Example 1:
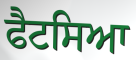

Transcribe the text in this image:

ਫੈਟਸਿਆ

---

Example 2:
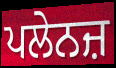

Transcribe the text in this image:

ਪਲੇਨਜ਼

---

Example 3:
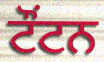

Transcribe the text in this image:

ਟੌਂਟਨ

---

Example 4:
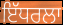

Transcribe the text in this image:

ਇੱਧਰਲਾ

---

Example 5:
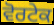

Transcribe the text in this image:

ਵੋਰਟੇਕ